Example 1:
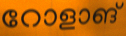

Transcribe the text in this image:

റോളാങ്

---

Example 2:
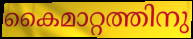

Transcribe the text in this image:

കൈമാറ്റത്തിനു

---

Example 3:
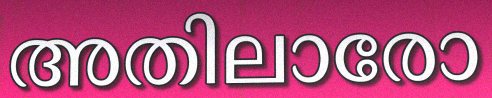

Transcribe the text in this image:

അതിലാരോ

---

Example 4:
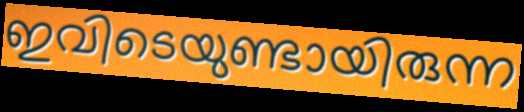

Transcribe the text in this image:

ഇവിടെയുണ്ടായിരുന്ന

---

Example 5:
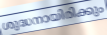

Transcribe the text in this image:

ശുദ്ധനായിരിക്കും